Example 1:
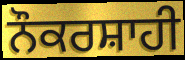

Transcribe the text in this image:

ਨੌਕਰਸ਼ਾਹੀ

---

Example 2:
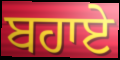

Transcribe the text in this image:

ਬਹਾਏ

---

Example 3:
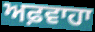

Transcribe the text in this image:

ਅਫ਼ਵਾਹਾ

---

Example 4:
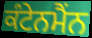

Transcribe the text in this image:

ਕੰਟੇਨਮੈਂਨ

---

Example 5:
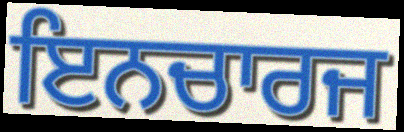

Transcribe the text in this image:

ਇਨਚਾਰਜ